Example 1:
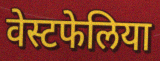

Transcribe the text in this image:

वेस्टफेलिया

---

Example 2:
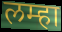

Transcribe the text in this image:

लम्हा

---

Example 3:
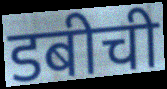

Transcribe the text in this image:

डबीची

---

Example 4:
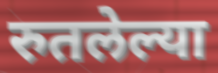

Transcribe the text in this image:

रुतलेल्या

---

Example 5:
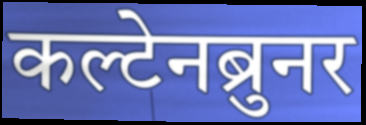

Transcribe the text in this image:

कल्टेनब्रुनर